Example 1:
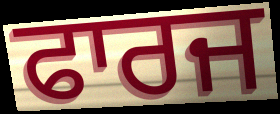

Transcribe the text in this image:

ਫਾਰਜ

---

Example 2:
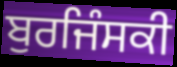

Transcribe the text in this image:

ਬੁਰਜਿੰਸਕੀ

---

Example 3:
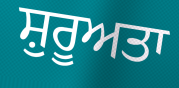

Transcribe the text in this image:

ਸ਼ੁਰੂਅਤਾ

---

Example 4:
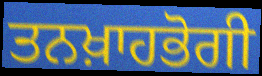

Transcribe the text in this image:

ਤਨਖ਼ਾਹਭੋਗੀ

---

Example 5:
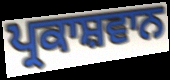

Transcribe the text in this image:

ਪ੍ਰਕਾਸ਼ਵਾਨ